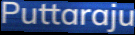
Puttaraju